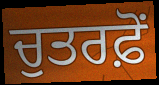
ਚੁਤਰਫ਼ੋਂ